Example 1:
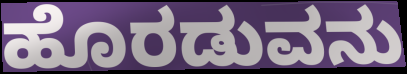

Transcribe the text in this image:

ಹೊರಡುವನು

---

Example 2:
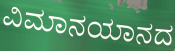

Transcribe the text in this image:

ವಿಮಾನಯಾನದ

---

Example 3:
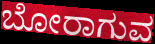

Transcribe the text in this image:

ಬೋರಾಗುವ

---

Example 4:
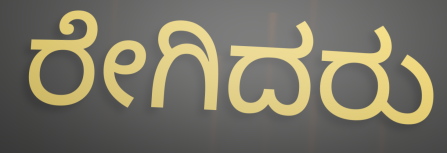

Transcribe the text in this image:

ರೇಗಿದರು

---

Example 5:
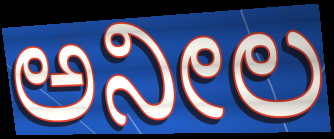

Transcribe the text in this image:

ಅನೀಲ